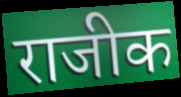
राजीक